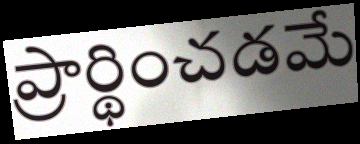
ప్రార్థించడమే